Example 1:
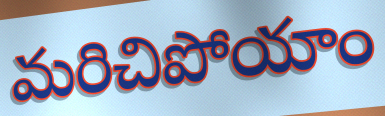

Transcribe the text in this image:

మరిచిపోయాం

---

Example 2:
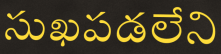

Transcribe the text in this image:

సుఖపడలేని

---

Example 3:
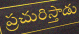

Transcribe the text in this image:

ప్రచురిస్తాడు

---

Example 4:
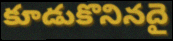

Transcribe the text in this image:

కూడుకొనినదై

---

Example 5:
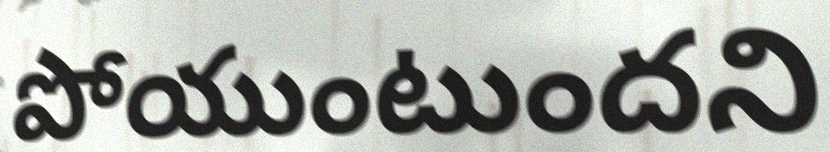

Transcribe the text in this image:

పోయుంటుందని